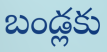
బండ్లకు